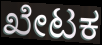
ಖೇಟಕ